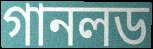
গানলড